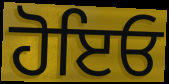
ਹੋਇਓ